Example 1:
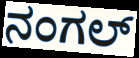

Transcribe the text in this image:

ನಂಗಲ್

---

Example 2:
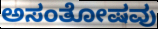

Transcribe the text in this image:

ಅಸಂತೋಷವು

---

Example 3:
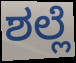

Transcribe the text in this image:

ಶಲ್ಲೆ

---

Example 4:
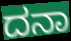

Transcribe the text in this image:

ದನಾ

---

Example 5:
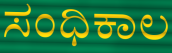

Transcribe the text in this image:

ಸಂಧಿಕಾಲ